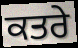
ਕਤਰੇ